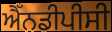
ਐੱਨਡੀਪੀਸੀ